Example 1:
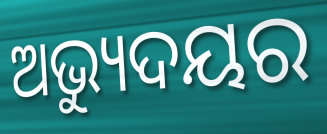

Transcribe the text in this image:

ଅଭ୍ୟୁଦୟର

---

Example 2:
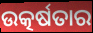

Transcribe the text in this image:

ଉତ୍କର୍ଷତାର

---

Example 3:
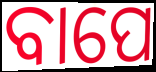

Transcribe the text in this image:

ବାପେ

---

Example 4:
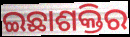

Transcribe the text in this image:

ଇଛାଶକ୍ତିର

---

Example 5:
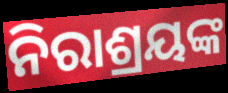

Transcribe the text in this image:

ନିରାଶ୍ରୟଙ୍କ